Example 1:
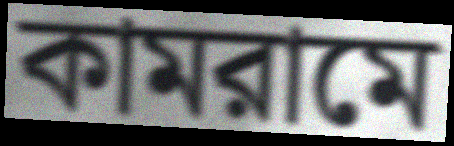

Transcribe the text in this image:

কামরামে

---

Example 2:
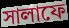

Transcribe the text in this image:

সালাফে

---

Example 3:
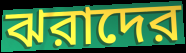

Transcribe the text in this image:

ঝরাদের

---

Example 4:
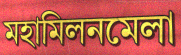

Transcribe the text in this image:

মহামিলনমেলা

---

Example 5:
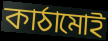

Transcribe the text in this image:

কাঠামোই